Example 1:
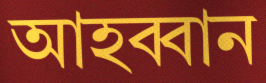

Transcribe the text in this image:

আহব্বান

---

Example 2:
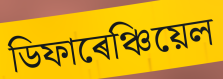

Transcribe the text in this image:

ডিফাৰেঞ্চিয়েল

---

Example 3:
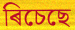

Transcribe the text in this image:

ৰিচেছে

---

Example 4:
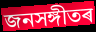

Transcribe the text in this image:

জনসঙ্গীতৰ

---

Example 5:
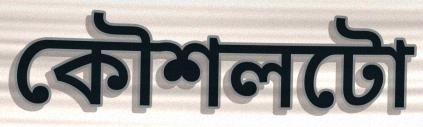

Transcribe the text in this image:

কৌশলটো